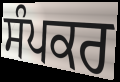
ਸੰਪਕਰ